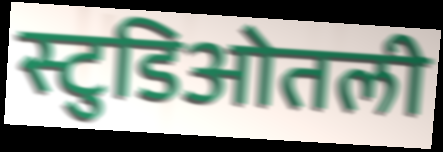
स्टुडिओतली